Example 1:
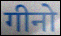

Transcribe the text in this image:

गीनो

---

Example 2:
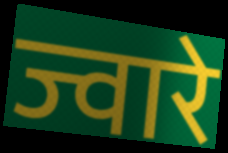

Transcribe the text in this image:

ज्वारे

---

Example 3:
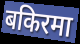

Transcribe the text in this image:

बकिरमा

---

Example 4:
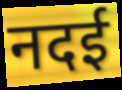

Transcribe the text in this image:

नदई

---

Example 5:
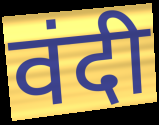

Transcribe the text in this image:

वंदी